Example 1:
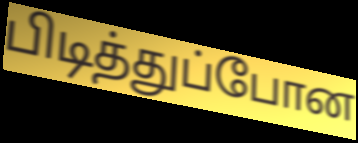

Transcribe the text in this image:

பிடித்துப்போன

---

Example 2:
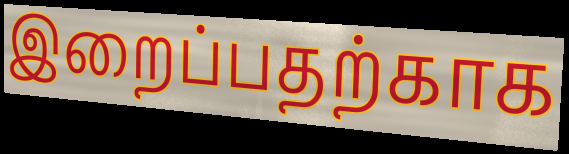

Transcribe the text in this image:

இறைப்பதற்காக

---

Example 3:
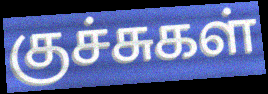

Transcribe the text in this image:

குச்சுகள்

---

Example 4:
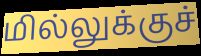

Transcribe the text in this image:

மில்லுக்குச்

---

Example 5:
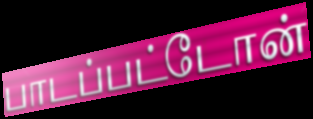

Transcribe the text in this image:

பாடப்பட்டோன்